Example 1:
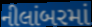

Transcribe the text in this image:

નીલાંબરમાં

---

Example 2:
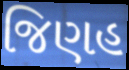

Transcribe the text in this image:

જિણહ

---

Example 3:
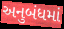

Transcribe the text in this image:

અનુબંધમાં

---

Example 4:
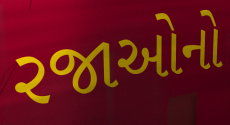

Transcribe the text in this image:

રજાઓનો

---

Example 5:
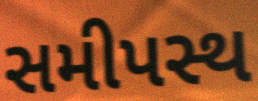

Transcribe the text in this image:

સમીપસ્થ